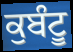
ਕੁਬੰਟੂ